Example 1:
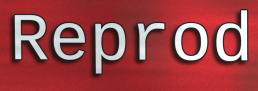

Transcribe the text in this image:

Reprod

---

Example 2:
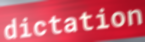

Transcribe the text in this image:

dictation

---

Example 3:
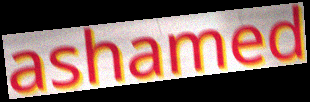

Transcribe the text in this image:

ashamed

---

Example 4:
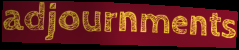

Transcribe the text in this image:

adjournments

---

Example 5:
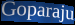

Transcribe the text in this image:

Goparaju